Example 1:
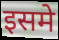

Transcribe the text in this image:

इसमे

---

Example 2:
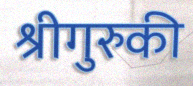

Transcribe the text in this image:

श्रीगुरुकी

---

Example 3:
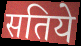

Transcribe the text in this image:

सतिये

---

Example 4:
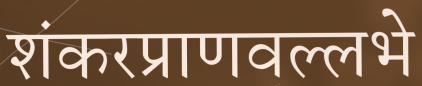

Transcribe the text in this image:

शंकरप्राणवल्लभे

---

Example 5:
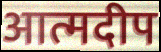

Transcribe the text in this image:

आत्मदीप